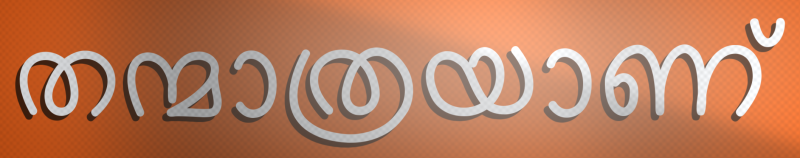
തന്മാത്രയാണ്